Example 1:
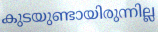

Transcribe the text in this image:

കുടയുണ്ടായിരുന്നില്ല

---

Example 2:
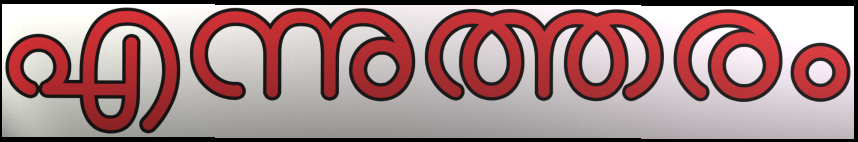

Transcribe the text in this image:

എന്നുത്തരം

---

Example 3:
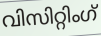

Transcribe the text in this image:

വിസിറ്റിംഗ്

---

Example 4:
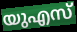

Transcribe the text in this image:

യുഎസ്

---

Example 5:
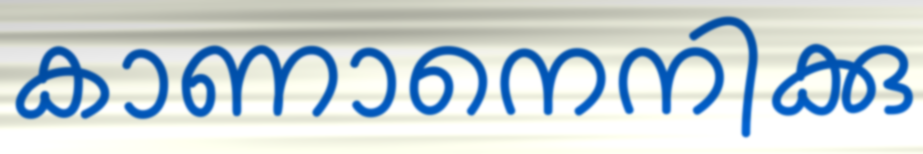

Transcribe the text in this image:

കാണാനെനിക്കു